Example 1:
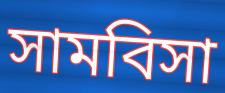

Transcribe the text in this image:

সামবিসা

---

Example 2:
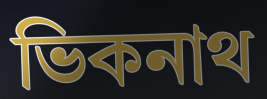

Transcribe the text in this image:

ভিকনাথ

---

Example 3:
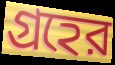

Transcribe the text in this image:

গ্রহের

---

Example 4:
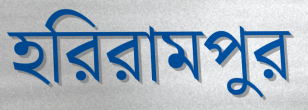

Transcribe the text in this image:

হরিরামপুর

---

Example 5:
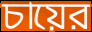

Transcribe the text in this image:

চায়ের